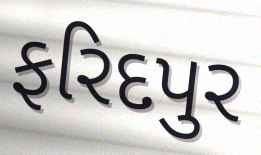
ફરિદપુર